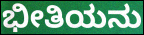
ಭೀತಿಯನು